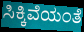
ಸಿಕ್ಕಿವೆಯಂತೆ